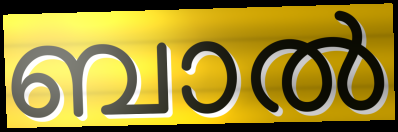
ബാൽ